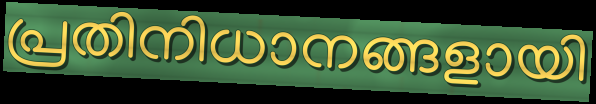
പ്രതിനിധാനങ്ങളായി